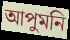
আপুমনি